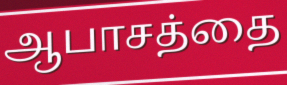
ஆபாசத்தை